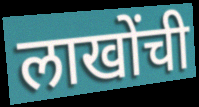
लाखोंची